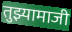
तुझ्यामाजी